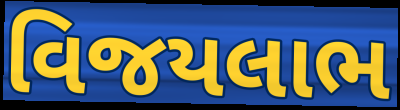
વિજયલાભ